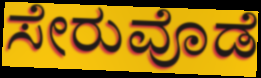
ಸೇರುವೊಡೆ